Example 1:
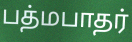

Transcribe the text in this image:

பத்மபாதர்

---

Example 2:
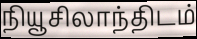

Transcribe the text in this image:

நியூசிலாந்திடம்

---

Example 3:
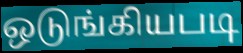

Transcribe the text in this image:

ஒடுங்கியபடி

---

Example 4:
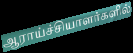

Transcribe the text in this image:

ஆராய்ச்சியாளர்களில்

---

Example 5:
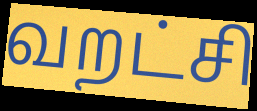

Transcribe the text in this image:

வறட்சி